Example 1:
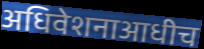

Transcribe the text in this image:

अधिवेशनाआधीच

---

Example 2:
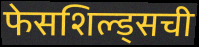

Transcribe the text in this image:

फेसशिल्ड्सची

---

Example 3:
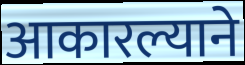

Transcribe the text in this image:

आकारल्याने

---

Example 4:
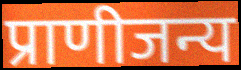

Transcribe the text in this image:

प्राणीजन्य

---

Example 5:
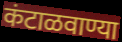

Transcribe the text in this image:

कंटाळवाण्या